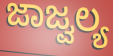
ಜಾಜ್ವಲ್ಯ